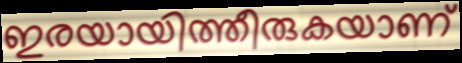
ഇരയായിത്തീരുകയാണ്